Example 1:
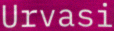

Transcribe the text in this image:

Urvasi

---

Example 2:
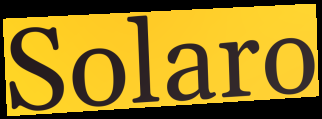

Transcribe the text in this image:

Solaro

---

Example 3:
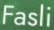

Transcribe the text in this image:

Fasli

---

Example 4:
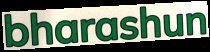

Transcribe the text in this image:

bharashun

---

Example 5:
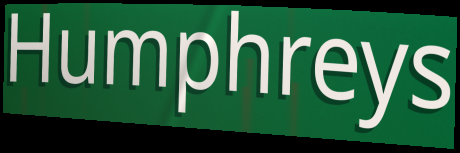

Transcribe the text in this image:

Humphreys